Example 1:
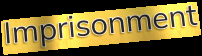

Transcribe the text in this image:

Imprisonment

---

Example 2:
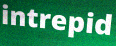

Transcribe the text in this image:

intrepid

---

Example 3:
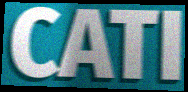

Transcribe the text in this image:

CATI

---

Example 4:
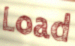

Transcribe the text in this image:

Load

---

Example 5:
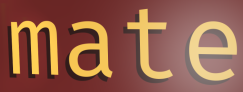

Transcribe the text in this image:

mate